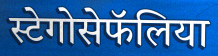
स्टेगोसेफॅलिया